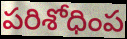
పరిశోధింప